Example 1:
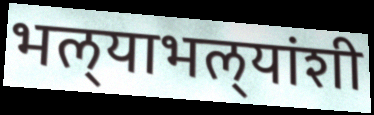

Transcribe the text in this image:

भल्याभल्यांशी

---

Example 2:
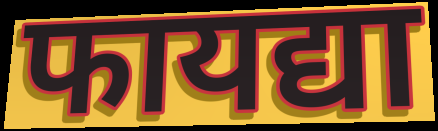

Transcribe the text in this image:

फायद्या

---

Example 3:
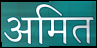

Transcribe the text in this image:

अमित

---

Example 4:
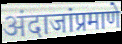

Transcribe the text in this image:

अंदाजांप्रमाणे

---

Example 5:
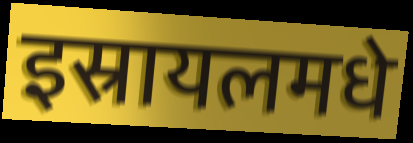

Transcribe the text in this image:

इस्रायलमधे